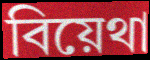
বিয়েথা